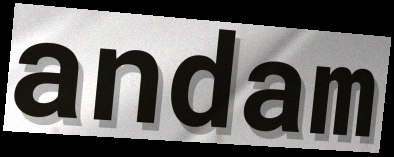
andam